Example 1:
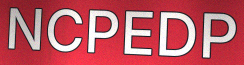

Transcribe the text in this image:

NCPEDP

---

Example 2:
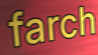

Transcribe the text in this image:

farch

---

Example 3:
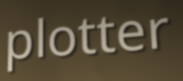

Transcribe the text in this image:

plotter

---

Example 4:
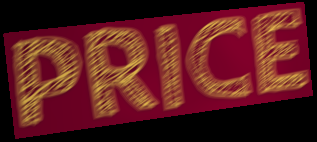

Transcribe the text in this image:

PRICE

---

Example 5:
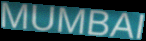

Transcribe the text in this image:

MUMBAI